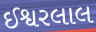
ઈશ્વરલાલ